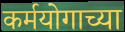
कर्मयोगाच्या